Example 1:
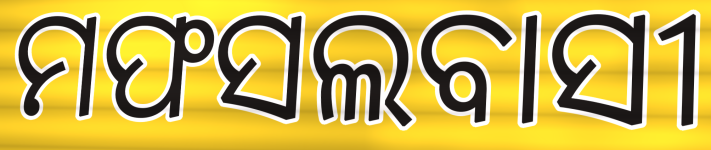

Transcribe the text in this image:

ମଫସଲବାସୀ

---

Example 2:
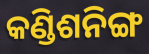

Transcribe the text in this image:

କଣ୍ଡିଶନିଙ୍ଗ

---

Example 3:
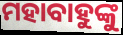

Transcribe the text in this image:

ମହାବାହୁଙ୍କୁ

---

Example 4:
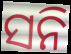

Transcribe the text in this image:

ସନି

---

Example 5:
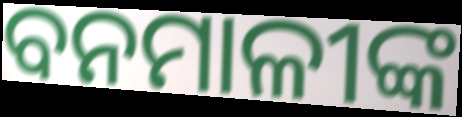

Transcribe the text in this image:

ବନମାଳୀଙ୍କ